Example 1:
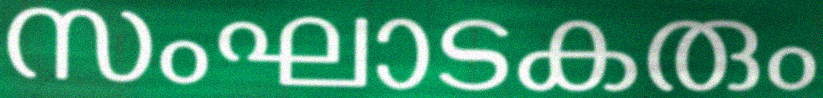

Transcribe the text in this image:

സംഘാടകരും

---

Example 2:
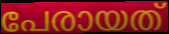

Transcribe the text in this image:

പേരായത്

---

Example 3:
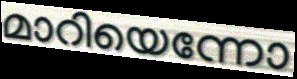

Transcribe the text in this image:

മാറിയെന്നോ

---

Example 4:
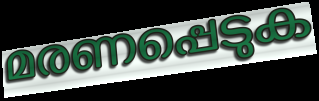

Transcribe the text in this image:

മരണപ്പെടുക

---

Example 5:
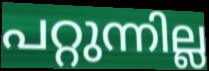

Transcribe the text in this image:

പറ്റുന്നില്ല